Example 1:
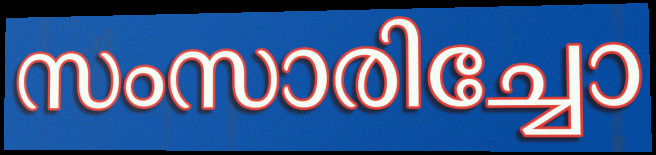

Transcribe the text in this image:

സംസാരിച്ചോ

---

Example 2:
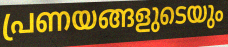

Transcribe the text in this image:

പ്രണയങ്ങളുടെയും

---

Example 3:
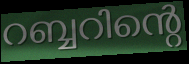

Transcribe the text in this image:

റബ്ബറിന്റെ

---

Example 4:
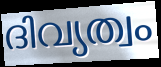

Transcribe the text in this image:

ദിവ്യത്വം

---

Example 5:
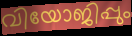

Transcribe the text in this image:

വിയോജിപ്പും